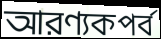
আরণ্যকপর্ব